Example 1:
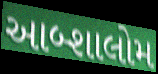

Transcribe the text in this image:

આબ્શાલોમ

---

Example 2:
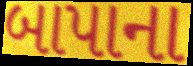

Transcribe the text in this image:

બાપાના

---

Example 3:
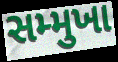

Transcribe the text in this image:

સમ્મુખા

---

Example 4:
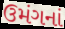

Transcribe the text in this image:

ઉમંગનાં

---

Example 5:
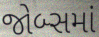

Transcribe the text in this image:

જોબ્સમાં